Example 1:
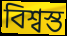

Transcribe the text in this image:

বিশ্বস্ত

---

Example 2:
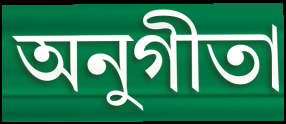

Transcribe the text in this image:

অনুগীতা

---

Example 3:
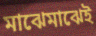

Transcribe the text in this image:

মাঝেমাঝেই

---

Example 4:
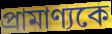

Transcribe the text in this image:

প্রামাণ্যকে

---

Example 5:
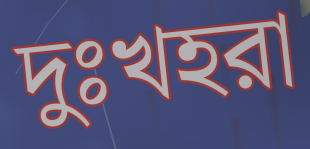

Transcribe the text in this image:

দুঃখহরা